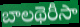
బాలథెరీసా